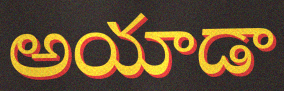
అయాడా